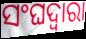
ସଂଘଦ୍ୱାରା